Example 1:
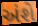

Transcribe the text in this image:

અંશે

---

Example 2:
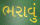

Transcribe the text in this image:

ભરાવું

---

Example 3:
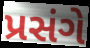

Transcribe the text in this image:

પ્રસંગે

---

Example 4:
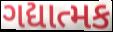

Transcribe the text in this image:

ગદ્યાત્મક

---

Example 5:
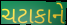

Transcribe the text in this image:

ચટાકાને